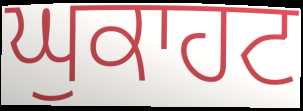
ਘੁਕਾਹਟ